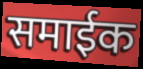
समाईक